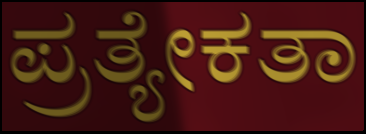
ಪ್ರತ್ಯೇಕತಾ